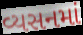
વ્યસનમાં